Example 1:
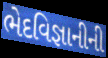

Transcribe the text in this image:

ભેદવિજ્ઞાનીની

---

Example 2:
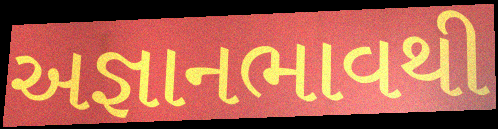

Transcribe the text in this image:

અજ્ઞાનભાવથી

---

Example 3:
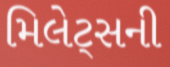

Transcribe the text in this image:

મિલેટ્સની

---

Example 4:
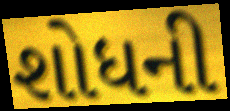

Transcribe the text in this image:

શોધની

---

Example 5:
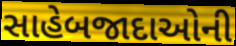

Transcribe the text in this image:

સાહેબજાદાઓની